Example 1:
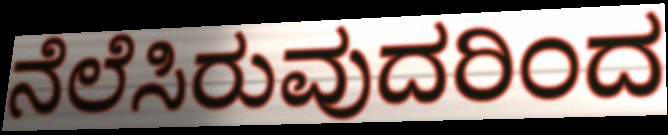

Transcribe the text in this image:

ನೆಲೆಸಿರುವುದರಿಂದ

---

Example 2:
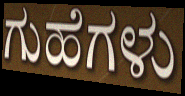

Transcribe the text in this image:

ಗುಹೆಗಳು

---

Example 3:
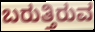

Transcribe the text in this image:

ಬರುತ್ತಿರುವ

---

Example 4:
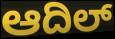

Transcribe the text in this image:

ಆದಿಲ್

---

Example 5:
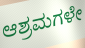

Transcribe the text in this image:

ಆಶ್ರಮಗಳೇ